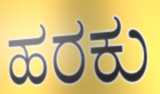
ಹರಕು